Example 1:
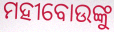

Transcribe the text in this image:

ମହୀବୋଉଙ୍କୁ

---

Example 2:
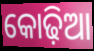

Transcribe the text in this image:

କୋଢ଼ିଆ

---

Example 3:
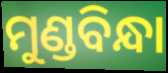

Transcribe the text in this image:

ମୁଣ୍ଡବିନ୍ଧା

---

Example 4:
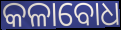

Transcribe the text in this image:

କଳାବୋଧ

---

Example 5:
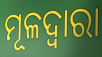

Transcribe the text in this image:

ମୂଳଦ୍ଵାରା